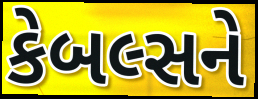
કેબલ્સને